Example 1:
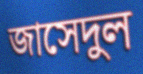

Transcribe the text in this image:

জাসেদুল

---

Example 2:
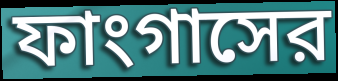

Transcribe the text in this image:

ফাংগাসের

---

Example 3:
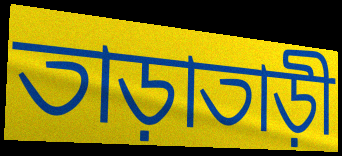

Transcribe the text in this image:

তাড়াতাড়ী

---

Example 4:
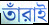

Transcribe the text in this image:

তাঁরাই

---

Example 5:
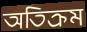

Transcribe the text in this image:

অতিক্রম